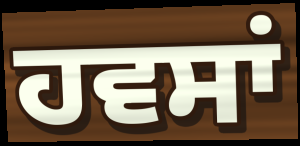
ਹਵਸਾਂ